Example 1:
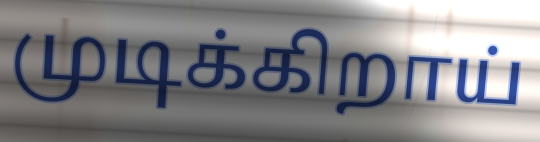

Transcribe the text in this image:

முடிக்கிறாய்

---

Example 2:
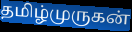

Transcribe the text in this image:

தமிழ்முருகன்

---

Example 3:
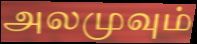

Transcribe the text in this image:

அலமுவும்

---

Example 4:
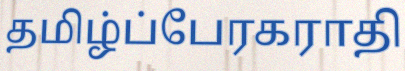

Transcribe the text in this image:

தமிழ்ப்பேரகராதி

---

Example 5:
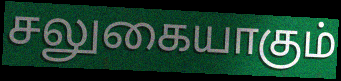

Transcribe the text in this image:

சலுகையாகும்